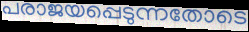
പരാജയപ്പെടുന്നതോടെ